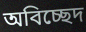
অবিচ্ছেদ